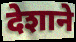
देशाने